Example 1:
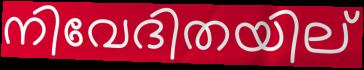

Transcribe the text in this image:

നിവേദിതയില്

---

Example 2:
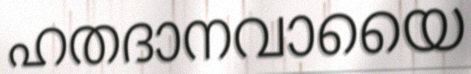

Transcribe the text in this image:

ഹതദാനവായൈ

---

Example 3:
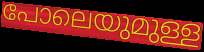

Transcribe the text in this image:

പോലെയുമുള്ള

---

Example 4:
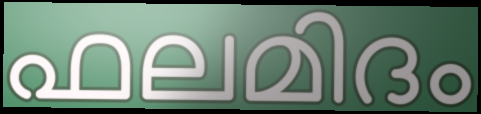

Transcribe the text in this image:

ഫലമിദം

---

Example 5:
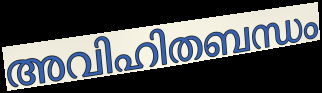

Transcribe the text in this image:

അവിഹിതബന്ധം